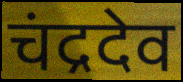
चंद्रदेव